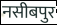
नसीबपुर